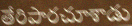
తేరిపారచూశాడు